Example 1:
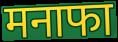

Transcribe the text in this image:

मनाफा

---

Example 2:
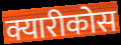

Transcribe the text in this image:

क्यारीकोस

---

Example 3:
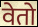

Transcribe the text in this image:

वेतो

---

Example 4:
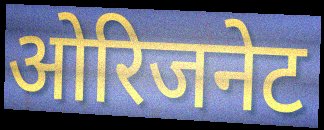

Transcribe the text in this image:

ओरिजनेट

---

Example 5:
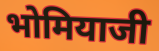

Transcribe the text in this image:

भोमियाजी